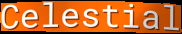
Celestial